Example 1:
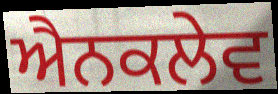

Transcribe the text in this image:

ਐਨਕਲੇਵ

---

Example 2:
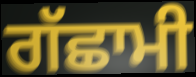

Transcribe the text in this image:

ਗੱਛਾਮੀ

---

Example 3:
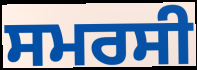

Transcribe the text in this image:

ਸਮਰਸੀ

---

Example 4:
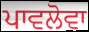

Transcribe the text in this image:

ਪਾਵਲੋਵਾ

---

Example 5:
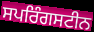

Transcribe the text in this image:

ਸਪਰਿੰਗਸਟੀਨ